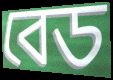
বেড